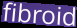
fibroid